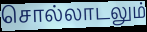
சொல்லாடலும்